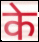
के